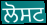
ਲੋਸਟ